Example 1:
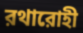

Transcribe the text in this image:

রথারোহী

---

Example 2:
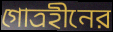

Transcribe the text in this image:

গোত্রহীনের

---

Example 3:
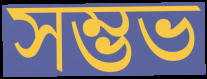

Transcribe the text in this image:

সম্ভভ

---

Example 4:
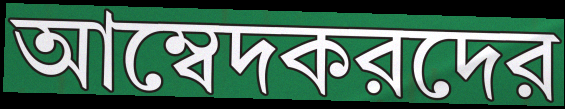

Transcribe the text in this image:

আম্বেদকরদের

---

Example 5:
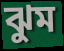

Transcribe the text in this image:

ঝুম